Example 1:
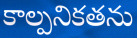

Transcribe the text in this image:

కాల్పనికతను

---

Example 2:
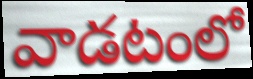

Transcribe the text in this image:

వాడటంలో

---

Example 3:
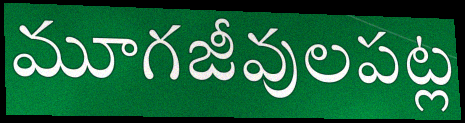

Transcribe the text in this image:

మూగజీవులపట్ల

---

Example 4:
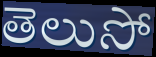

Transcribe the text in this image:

తెలుసో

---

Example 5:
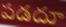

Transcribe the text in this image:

పడదూ